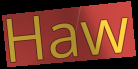
Haw